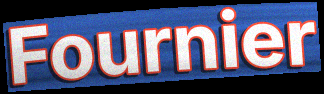
Fournier